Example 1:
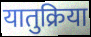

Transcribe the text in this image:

यातुक्रिया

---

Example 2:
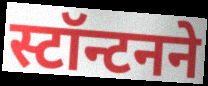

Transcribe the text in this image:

स्टॉन्टनने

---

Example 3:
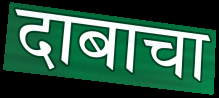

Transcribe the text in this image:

दाबाचा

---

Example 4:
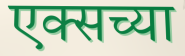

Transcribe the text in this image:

एक्सच्या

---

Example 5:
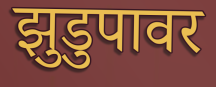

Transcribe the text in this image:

झुडुपावर